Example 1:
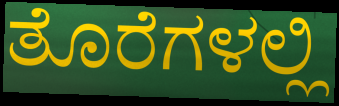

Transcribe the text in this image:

ತೊರೆಗಳಲ್ಲಿ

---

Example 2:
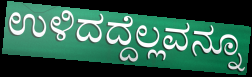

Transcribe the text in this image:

ಉಳಿದದ್ದೆಲ್ಲವನ್ನೂ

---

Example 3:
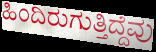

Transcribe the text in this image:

ಹಿಂದಿರುಗುತ್ತಿದ್ದೆವು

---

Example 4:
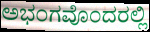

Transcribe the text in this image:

ಅಭಂಗವೊಂದರಲ್ಲಿ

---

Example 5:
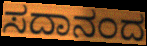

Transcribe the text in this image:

ಸದಾನಂದ